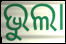
ଭୁଲା